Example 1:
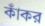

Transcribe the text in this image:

কাঁকর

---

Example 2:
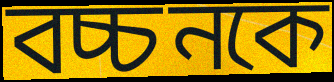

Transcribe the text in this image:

বচ্চনকে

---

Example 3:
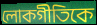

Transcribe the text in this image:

লোকগীতিকে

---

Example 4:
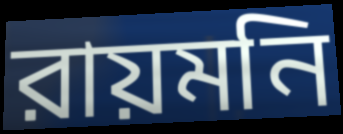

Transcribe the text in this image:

রায়মনি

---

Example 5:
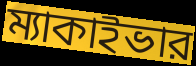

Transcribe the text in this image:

ম্যাকাইভার